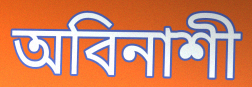
অবিনাশী